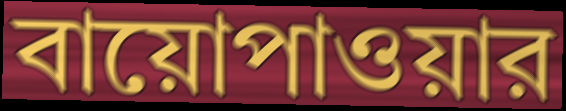
বায়োপাওয়ার